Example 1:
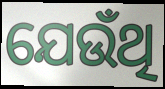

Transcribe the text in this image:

ଯେଉଁଥି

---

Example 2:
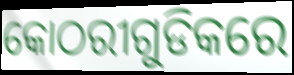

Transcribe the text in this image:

କୋଠରୀଗୁଡିକରେ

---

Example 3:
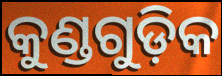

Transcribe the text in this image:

କୁଣ୍ଡଗୁଡ଼ିକ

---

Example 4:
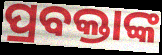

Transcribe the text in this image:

ପ୍ରବକ୍ତାଙ୍କ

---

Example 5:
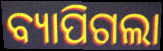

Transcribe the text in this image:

ବ୍ୟାପିଗଲା